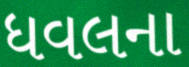
ધવલના